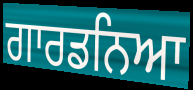
ਗਾਰਡਨਿਆ